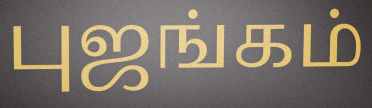
புஜங்கம்